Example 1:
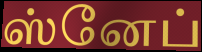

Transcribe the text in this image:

ஸ்னேப்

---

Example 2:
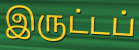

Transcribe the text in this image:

இருட்டப்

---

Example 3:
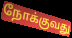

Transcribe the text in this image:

நோக்குவது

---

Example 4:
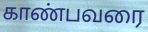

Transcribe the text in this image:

காண்பவரை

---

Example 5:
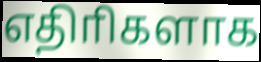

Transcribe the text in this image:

எதிரிகளாக